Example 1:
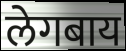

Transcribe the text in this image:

लेगबाय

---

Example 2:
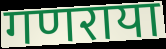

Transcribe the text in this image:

गणराया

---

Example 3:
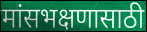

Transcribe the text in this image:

मांसभक्षणासाठी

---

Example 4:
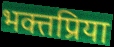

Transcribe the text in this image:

भक्तप्रिया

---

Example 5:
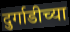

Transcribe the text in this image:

दुर्गाडीच्या